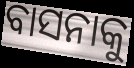
ବାସନାକୁ